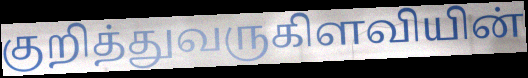
குறித்துவருகிளவியின்